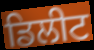
ਡਿਲੀਟ